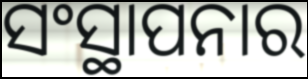
ସଂସ୍ଥାପନାର